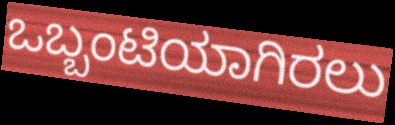
ಒಬ್ಬಂಟಿಯಾಗಿರಲು